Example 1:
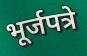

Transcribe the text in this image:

भूर्जपत्रे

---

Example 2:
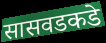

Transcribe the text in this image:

सासवडकडे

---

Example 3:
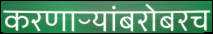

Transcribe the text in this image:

करणाऱ्यांबरोबरच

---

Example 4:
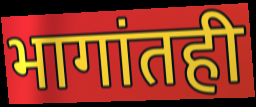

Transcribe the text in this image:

भागांतही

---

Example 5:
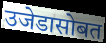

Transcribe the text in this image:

उजेडासोबत